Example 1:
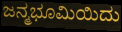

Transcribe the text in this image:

ಜನ್ಮಭೂಮಿಯಿದು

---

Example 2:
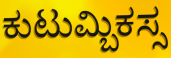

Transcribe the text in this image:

ಕುಟುಮ್ಬಿಕಸ್ಸ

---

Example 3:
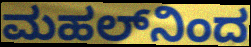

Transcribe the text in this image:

ಮಹಲ್‌ನಿಂದ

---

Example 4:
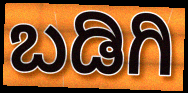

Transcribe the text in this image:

ಬಡಿಗಿ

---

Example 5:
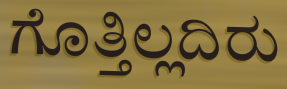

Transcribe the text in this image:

ಗೊತ್ತಿಲ್ಲದಿರು